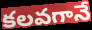
కలవగానే